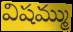
విషమ్ము